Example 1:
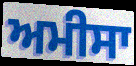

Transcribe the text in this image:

ਅਮੀਸਾ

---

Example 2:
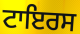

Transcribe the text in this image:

ਟਾਇਰਸ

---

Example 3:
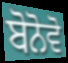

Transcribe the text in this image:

ਬੋਨੋਵੋ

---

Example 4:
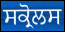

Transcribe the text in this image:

ਸਕ੍ਰੋਲਸ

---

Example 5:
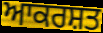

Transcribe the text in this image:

ਆਕਰਸ਼ਤ